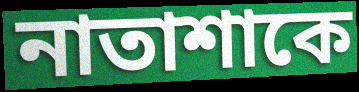
নাতাশাকে